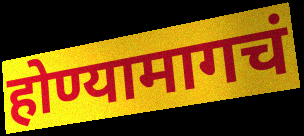
होण्यामागचं